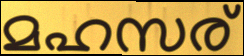
മഹസര്